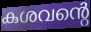
കുശവന്റെ